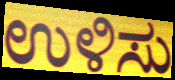
ಉಳಿಸು